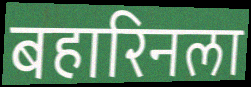
बहारिनला